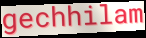
gechhilam